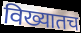
विख्यातच